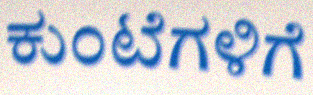
ಕುಂಟೆಗಳಿಗೆ